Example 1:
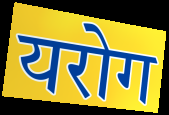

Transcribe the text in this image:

यरोग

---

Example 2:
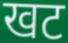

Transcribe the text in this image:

खट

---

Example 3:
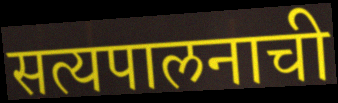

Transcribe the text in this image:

सत्यपालनाची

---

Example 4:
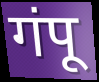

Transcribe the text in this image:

गंपू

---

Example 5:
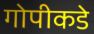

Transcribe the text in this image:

गोपीकडे